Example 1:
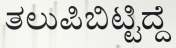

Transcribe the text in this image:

ತಲುಪಿಬಿಟ್ಟಿದ್ದೆ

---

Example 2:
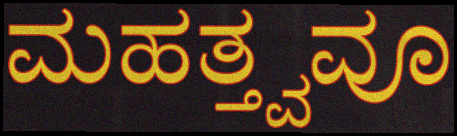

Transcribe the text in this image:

ಮಹತ್ತ್ವವೂ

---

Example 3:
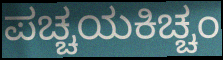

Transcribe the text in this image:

ಪಚ್ಚಯಕಿಚ್ಚಂ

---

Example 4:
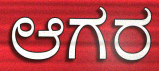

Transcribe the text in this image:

ಆಗರ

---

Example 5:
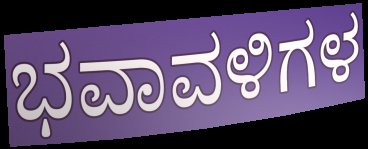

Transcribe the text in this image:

ಭವಾವಳಿಗಳ